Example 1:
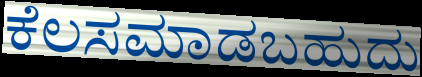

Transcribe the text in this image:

ಕೆಲಸಮಾಡಬಹುದು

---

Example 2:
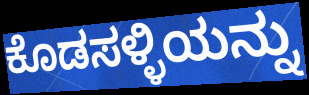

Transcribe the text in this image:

ಕೊಡಸಳ್ಳಿಯನ್ನು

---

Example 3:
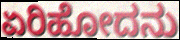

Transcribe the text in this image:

ಏರಿಹೋದನು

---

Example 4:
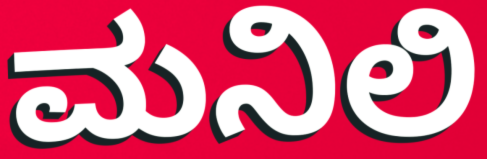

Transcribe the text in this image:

ಮನಿಲಿ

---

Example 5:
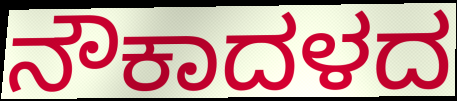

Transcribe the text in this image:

ನೌಕಾದಳದ